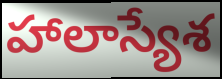
హాలాస్యేశ